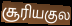
சூரியகுல